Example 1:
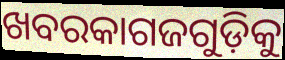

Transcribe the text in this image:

ଖବରକାଗଜଗୁଡ଼ିକୁ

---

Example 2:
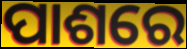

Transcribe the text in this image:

ପାଶରେ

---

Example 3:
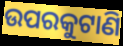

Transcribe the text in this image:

ଉପରକୁଟାଣି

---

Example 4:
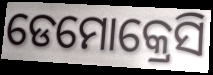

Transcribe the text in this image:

ଡେମୋକ୍ରେସି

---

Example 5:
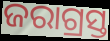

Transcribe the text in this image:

ଜରାଗ୍ରସ୍ତ